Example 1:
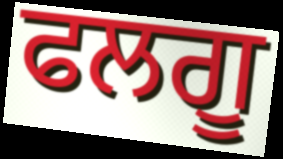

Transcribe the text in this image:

ਫਲਗੂ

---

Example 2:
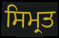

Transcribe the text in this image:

ਸਿਮ੍ਰਤ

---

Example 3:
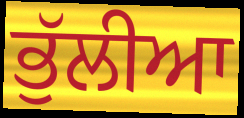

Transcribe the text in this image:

ਭੁੱਲੀਆ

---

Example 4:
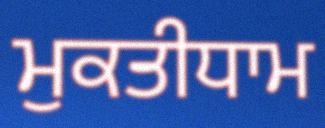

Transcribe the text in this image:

ਮੁਕਤੀਧਾਮ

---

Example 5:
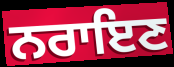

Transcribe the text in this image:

ਨਰਾਇਣ